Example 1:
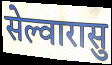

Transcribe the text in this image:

सेल्वारासु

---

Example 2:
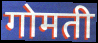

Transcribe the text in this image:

गोमती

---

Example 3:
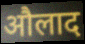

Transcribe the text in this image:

औलाद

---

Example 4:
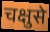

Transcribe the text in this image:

चक्षुसे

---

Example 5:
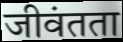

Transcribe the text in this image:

जीवंतता